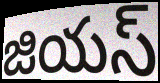
జియస్